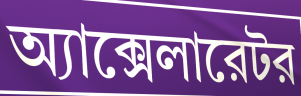
অ্যাক্সেলারেটর